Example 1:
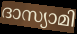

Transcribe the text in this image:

ദാസ്യാമി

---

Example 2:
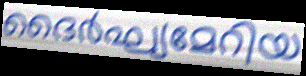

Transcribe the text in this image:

ദൈർഘ്യമേറിയ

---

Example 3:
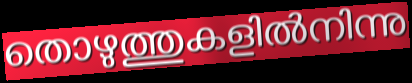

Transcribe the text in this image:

തൊഴുത്തുകളിൽനിന്നു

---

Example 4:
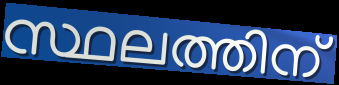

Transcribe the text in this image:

സ്ഥലത്തിന്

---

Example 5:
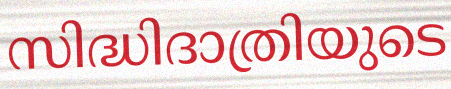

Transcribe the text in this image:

സിദ്ധിദാത്രിയുടെ